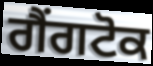
ਗੈਂਗਟੋਕ